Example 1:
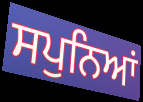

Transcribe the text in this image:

ਸਪੁਨਿਆਂ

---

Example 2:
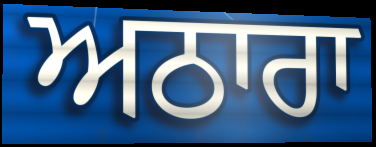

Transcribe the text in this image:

ਅਠਾਰਾ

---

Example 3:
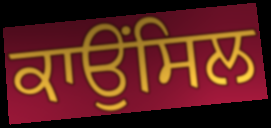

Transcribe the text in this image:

ਕਾਉਂਸਿਲ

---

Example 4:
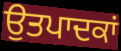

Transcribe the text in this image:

ਉਤਪਾਦਕਾਂ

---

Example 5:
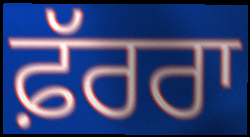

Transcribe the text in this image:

ਫ਼ੱਰਰਾ